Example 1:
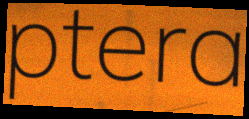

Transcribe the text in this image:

ptera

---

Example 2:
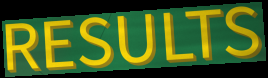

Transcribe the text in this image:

RESULTS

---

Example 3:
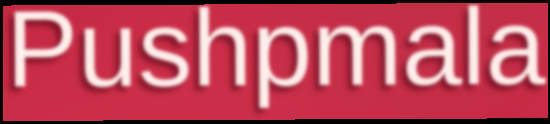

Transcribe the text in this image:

Pushpmala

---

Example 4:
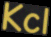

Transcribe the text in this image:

Kcl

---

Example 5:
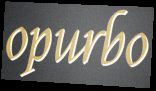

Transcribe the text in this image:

opurbo